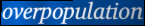
overpopulation